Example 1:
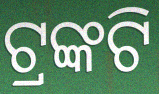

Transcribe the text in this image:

ଟ୍ରଙ୍କଟି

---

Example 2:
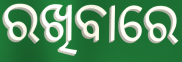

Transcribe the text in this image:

ରଖିବାରେ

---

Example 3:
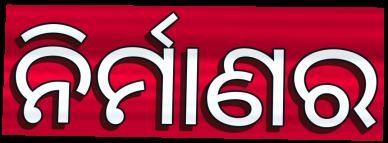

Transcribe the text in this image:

ନିର୍ମାଣର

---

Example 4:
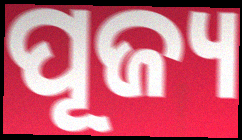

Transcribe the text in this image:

ପୂଜ୍ୟ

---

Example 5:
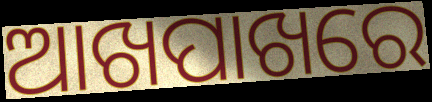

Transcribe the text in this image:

ଆଖପାଖରେ